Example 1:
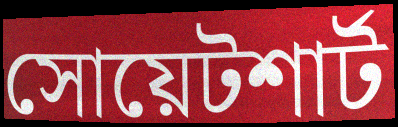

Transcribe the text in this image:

সোয়েটশার্ট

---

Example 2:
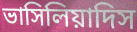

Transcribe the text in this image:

ভাসিলিয়াদিস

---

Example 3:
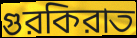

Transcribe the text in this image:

গুরকিরাত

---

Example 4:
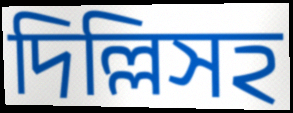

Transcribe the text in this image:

দিল্লিসহ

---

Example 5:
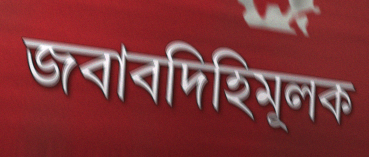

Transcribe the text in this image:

জবাবদিহিমূলক